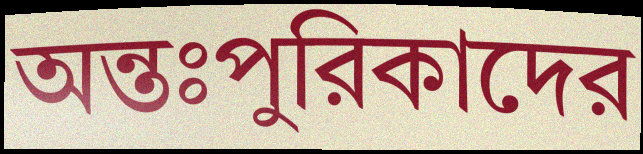
অন্তঃপুরিকাদের